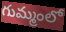
గుమ్మంలో